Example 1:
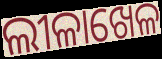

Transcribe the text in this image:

ଲୀଳାଖେଳ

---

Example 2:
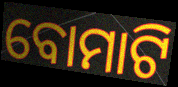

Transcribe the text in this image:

ବୋମାଟି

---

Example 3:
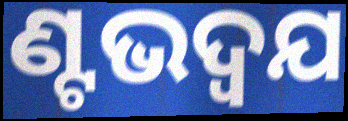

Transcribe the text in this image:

ଣ୍ଟଭଦ୍ଵଯ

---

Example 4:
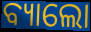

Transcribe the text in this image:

ବ୍ୟାଲୋ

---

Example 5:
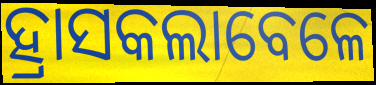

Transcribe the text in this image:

ହ୍ରାସକଲାବେଳେ